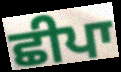
ਛੀਪਾ